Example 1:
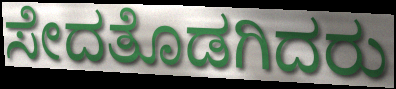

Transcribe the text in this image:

ಸೇದತೊಡಗಿದರು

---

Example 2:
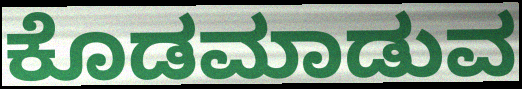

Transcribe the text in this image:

ಕೊಡಮಾಡುವ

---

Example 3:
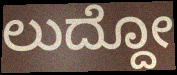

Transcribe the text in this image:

ಲುದ್ದೋ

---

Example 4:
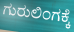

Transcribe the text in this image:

ಗುರುಲಿಂಗಕ್ಕೆ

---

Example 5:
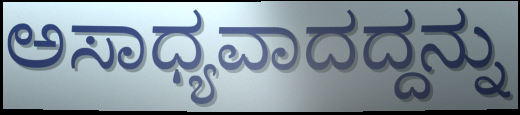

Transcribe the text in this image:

ಅಸಾಧ್ಯವಾದದ್ದನ್ನು